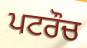
ਪਟਰੌਚ